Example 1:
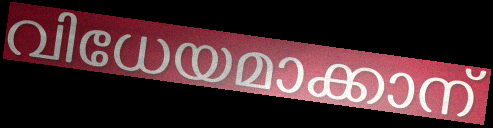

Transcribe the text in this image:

വിധേയമാക്കാന്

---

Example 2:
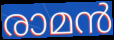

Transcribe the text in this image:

രാമൻ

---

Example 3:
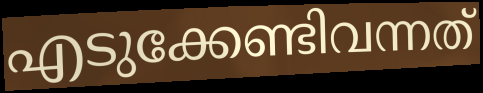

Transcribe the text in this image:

എടുക്കേണ്ടിവന്നത്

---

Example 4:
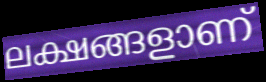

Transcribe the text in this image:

ലക്ഷങ്ങളാണ്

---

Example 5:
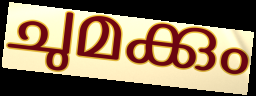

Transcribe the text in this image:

ചുമക്കും